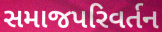
સમાજપરિવર્તન